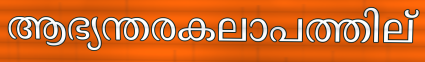
ആഭ്യന്തരകലാപത്തില്